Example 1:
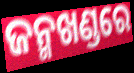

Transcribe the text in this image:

ଜନ୍ମଖଣ୍ଡରେ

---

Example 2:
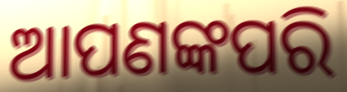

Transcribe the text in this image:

ଆପଣଙ୍କପରି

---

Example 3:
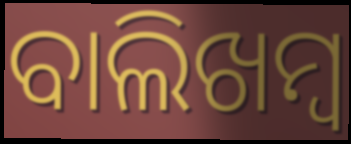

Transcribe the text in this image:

ବାଲିଖମ୍ବ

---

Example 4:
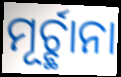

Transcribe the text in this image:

ମୂର୍ଚ୍ଛାନା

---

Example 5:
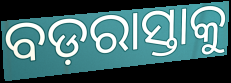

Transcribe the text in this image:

ବଡ଼ରାସ୍ତାକୁ